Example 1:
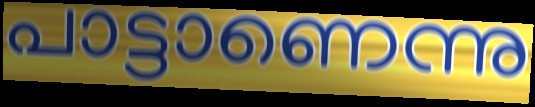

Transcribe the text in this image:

പാട്ടാണെന്നു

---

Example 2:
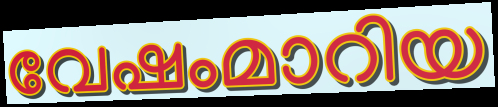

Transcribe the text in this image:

വേഷംമാറിയ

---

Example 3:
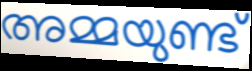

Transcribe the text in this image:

അമ്മയുണ്ട്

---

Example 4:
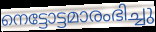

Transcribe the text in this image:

നെട്ടോട്ടമാരംഭിച്ചു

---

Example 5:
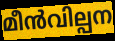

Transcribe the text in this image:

മീൻവില്പന